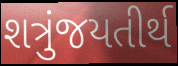
શત્રુંજયતીર્થ